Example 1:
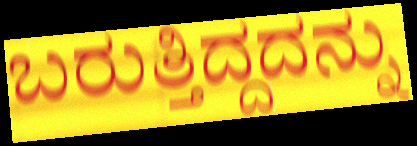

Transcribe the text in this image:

ಬರುತ್ತಿದ್ದದನ್ನು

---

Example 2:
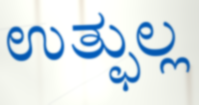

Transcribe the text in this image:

ಉತ್ಫುಲ್ಲ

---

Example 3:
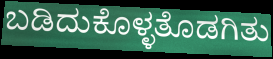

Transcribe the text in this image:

ಬಡಿದುಕೊಳ್ಳತೊಡಗಿತು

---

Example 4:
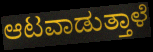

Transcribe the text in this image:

ಆಟವಾಡುತ್ತಾಳೆ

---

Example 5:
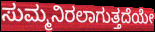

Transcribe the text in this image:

ಸುಮ್ಮನಿರಲಾಗುತ್ತದೆಯೇ